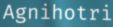
Agnihotri